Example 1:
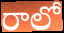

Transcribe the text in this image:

రాలో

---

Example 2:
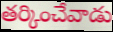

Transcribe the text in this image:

తర్కించేవాడు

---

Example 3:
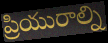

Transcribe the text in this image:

ప్రియురాల్ని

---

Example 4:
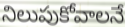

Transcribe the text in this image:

నిలుపుకోవాలనే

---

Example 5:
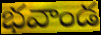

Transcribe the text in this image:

భవాండ